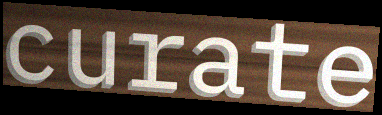
curate